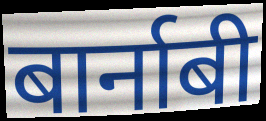
बार्नाबी